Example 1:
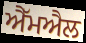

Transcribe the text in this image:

ਐੱਮਐਲ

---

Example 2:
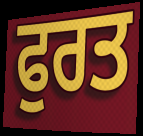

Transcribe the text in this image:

ਫੁਰਤ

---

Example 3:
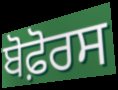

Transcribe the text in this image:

ਬੋਫ਼ੋਰਸ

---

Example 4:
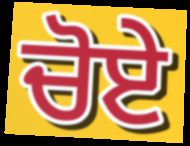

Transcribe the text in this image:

ਚੋਏ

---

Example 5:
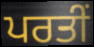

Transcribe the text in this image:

ਪਰਤੀਂ